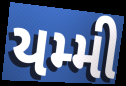
યમ્મી